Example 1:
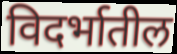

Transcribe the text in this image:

विदर्भातील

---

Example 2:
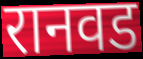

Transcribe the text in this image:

रानवड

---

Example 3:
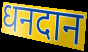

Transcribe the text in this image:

धनदान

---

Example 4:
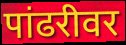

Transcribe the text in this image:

पांढरीवर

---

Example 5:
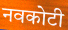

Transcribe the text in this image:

नवकोटी